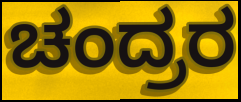
ಚಂದ್ರರ